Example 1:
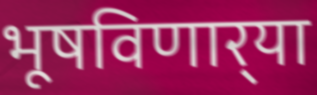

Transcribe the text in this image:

भूषविणार्‍या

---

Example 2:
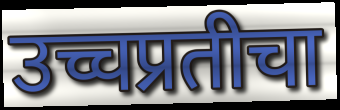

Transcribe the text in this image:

उच्चप्रतीचा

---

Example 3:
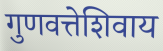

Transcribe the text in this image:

गुणवत्तेशिवाय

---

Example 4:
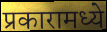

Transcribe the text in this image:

प्रकारामध्ये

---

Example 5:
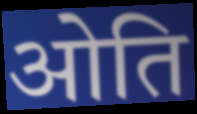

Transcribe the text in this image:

ओति